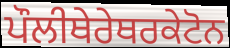
ਪੌਲੀਥੇਰੇਥਰਕੇਟੋਨ